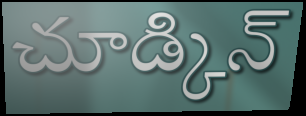
చూడ్కిన్